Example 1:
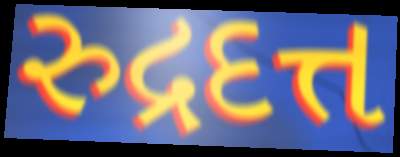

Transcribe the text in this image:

રુદ્રદત્ત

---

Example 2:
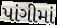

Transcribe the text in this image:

પાંગીમાં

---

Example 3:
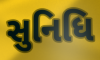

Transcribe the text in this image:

સુનિધિ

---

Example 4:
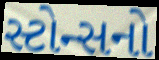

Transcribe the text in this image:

સ્ટોન્સનો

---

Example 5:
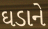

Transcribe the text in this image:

ઘડાને